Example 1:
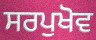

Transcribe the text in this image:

ਸਰਪੁਖੋਵ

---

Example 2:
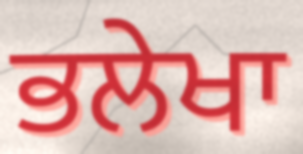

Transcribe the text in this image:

ਭਲੇਖਾ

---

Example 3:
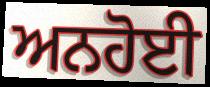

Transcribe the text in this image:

ਅਨਹੋਈ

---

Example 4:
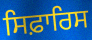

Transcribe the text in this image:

ਸਿਫ਼ਾਰਿਸ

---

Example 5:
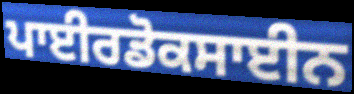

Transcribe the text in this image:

ਪਾਈਰਡੋਕਸਾਈਨ